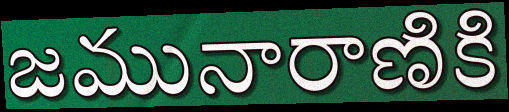
జమునారాణికి